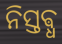
ନିସ୍ତଵ୍ଧ